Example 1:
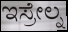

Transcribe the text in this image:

ಇಸ್ರೇಲ್ನ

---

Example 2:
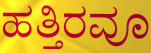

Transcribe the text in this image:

ಹತ್ತಿರವೂ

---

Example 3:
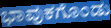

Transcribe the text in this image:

ಭಾವುಕಗೊಂಡು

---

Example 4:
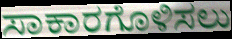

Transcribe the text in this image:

ಸಾಕಾರಗೊಳಿಸಲು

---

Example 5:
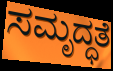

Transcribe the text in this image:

ಸಮೃದ್ಧತೆ